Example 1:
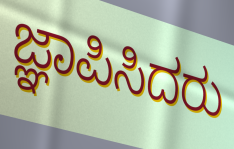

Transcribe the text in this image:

ಜ್ಞಾಪಿಸಿದರು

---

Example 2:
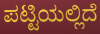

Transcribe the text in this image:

ಪಟ್ಟಿಯಲ್ಲಿದೆ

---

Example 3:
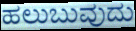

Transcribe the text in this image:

ಹಲುಬುವುದು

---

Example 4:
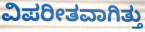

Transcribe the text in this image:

ವಿಪರೀತವಾಗಿತ್ತು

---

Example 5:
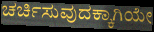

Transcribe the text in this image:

ಚರ್ಚಿಸುವುದಕ್ಕಾಗಿಯೇ